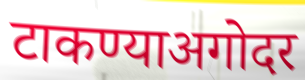
टाकण्याअगोदर